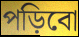
পড়িবো